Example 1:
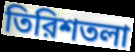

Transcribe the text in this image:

তিরিশতলা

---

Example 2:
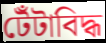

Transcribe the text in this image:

টেঁটাবিদ্ধ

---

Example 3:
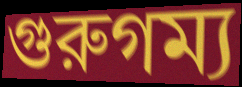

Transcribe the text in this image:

গুরুগম্য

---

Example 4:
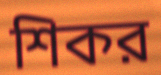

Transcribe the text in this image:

শিকর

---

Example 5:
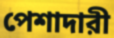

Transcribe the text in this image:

পেশাদারী